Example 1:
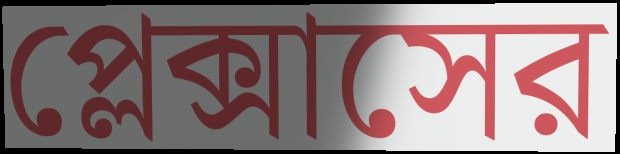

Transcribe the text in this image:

প্লেক্সাসের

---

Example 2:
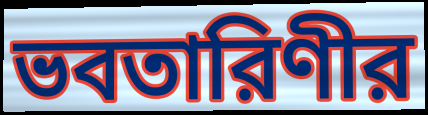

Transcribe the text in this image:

ভবতারিণীর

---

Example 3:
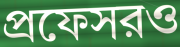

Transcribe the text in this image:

প্রফেসরও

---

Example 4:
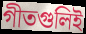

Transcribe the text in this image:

গীতগুলিই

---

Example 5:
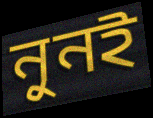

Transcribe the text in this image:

নুনই